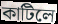
কাটিলে